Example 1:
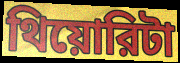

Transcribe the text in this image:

থিয়োরিটা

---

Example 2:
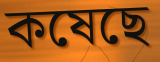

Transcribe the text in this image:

কষেছে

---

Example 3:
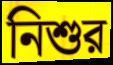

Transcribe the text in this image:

নিশুর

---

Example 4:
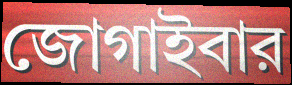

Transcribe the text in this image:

জোগাইবার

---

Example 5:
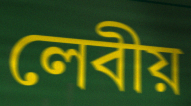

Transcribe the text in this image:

লেবীয়